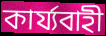
কাৰ্য্যবাহী